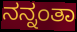
ನನ್ನಂತಾ